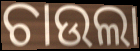
ଚାଉଲା